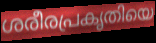
ശരീരപ്രകൃതിയെ